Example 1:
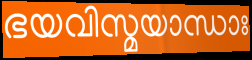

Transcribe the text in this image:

ഭയവിസ്മയാന്ധാഃ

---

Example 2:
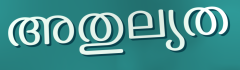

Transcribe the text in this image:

അതുല്യത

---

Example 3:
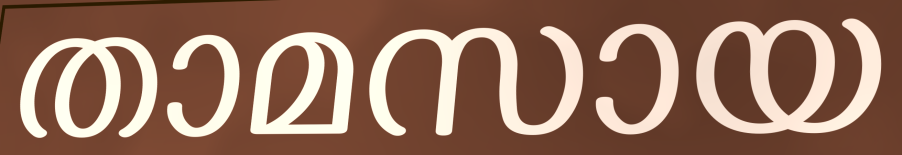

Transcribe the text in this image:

താമസായ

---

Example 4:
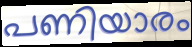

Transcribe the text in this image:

പണിയാരം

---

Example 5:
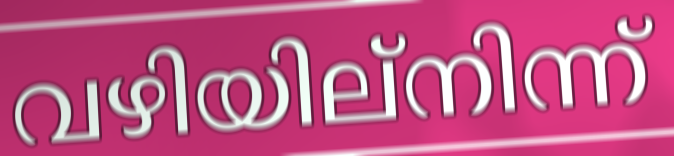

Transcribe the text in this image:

വഴിയില്നിന്ന്